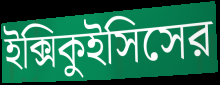
ইক্সিকুইসিসের